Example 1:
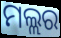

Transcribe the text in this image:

ମଲ୍ଲର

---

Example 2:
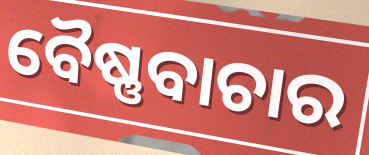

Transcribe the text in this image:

ବୈଷ୍ଣବାଚାର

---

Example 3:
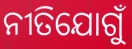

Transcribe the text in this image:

ନୀତିଯୋଗୁଁ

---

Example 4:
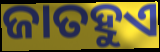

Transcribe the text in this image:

ଜାତହୁଏ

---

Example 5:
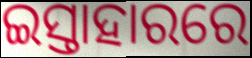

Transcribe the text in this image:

ଇସ୍ତାହାରରେ